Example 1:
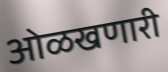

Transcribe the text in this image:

ओळखणारी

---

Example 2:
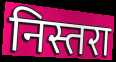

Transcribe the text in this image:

निस्तरा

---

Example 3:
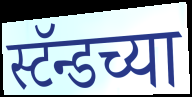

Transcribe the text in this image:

स्टॅन्डच्या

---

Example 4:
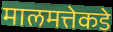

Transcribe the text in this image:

मालमत्तेकडे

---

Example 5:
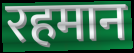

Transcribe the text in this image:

रहमान